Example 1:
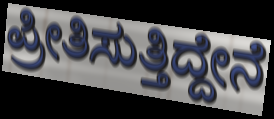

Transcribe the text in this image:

ಪ್ರೀತಿಸುತ್ತಿದ್ದೇನೆ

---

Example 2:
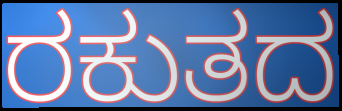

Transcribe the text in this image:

ರಕುತದ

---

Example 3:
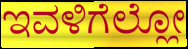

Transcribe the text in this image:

ಇವಳಿಗೆಲ್ಲೋ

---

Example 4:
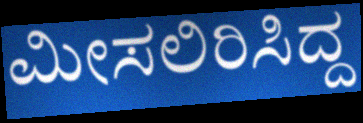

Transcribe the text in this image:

ಮೀಸಲಿರಿಸಿದ್ದ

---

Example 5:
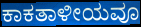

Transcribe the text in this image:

ಕಾಕತಾಳೀಯವೂ